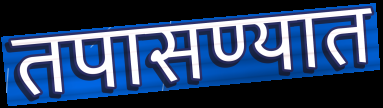
तपासण्यात